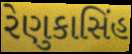
રેણુકાસિંહ